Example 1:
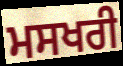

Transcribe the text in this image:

ਮਸਖਰੀ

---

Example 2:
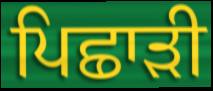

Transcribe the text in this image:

ਪਿਛਾੜੀ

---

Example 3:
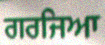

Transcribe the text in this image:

ਗਰਜਿਆ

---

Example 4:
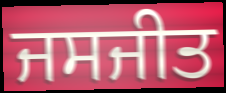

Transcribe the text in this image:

ਜਸਜੀਤ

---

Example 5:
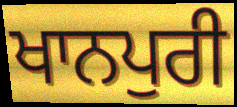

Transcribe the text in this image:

ਖਾਨਪੁਰੀ